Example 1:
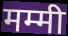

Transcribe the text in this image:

मम्मी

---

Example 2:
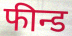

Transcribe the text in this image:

फीन्ड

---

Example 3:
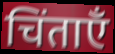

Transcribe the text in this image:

चिंताएँ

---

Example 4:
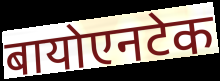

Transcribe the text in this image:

बायोएनटेक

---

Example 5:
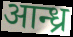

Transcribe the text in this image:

आन्ध्र